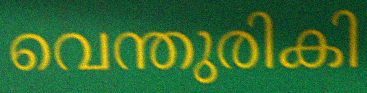
വെന്തുരികി